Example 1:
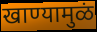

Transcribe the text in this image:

खाण्यामुळं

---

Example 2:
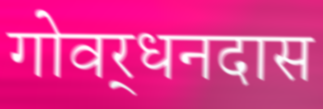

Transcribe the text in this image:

गोवर्धनदास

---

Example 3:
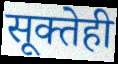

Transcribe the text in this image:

सूक्तेही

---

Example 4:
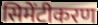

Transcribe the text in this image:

सिमेंटीकरण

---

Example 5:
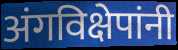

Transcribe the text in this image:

अंगविक्षेपांनी